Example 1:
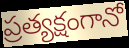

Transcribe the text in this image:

ప్రత్యక్షంగానో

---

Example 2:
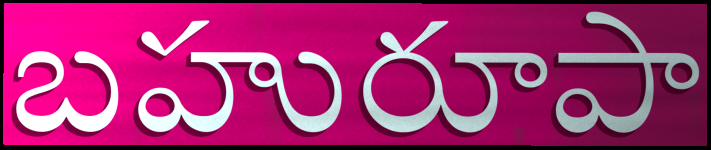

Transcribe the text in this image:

బహురూపా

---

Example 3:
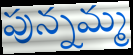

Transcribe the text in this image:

పున్నమ్మ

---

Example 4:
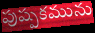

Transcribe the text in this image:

పుష్పకమును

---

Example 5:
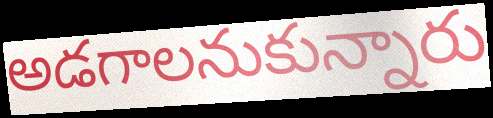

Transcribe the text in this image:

అడగాలనుకున్నారు